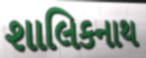
શાલિકનાથ